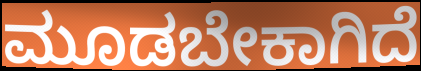
ಮೂಡಬೇಕಾಗಿದೆ